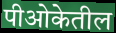
पीओकेतील